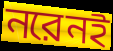
নরেনই